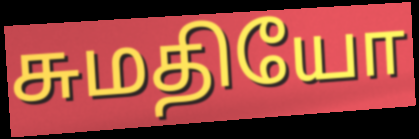
சுமதியோ